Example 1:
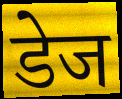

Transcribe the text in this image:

डेज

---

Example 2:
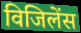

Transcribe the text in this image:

विजिलेंस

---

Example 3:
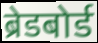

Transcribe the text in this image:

ब्रेडबोर्ड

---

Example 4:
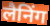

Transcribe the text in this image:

लैनिंग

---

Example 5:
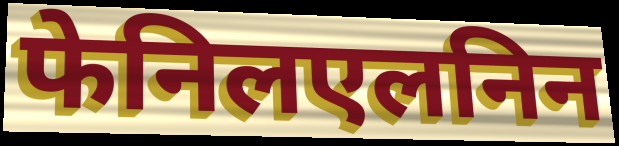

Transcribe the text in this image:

फेनिलएलनिन